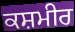
ਕਸ਼ਮੀਰ